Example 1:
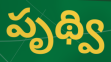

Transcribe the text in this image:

పృథ్వి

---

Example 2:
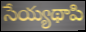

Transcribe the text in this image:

సేయ్యథాపి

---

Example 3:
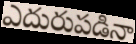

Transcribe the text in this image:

ఎదురుపడినా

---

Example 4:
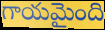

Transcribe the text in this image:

గాయమైంది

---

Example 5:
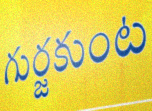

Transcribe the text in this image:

గుర్జకుంట